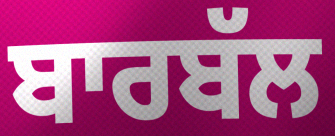
ਬਾਰਬੱਲ